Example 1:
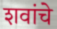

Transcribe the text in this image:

शवांचे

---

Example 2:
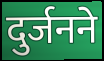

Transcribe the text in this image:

दुर्जनने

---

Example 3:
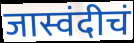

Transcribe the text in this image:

जास्वंदीचं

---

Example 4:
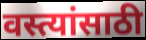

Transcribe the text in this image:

वस्त्यांसाठी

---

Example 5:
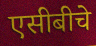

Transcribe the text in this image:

एसीबीचे